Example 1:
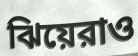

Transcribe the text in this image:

ঝিয়েরাও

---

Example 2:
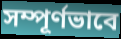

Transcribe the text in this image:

সম্পূর্ণভাবে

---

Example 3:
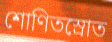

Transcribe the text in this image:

শোণিতস্রোত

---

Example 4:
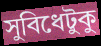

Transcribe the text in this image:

সুবিধেটুকু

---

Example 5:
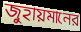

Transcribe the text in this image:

জুহায়মানের